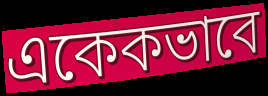
একেকভাবে